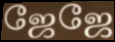
ஜேஜே